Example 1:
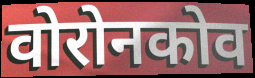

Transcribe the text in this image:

वोरोनकोव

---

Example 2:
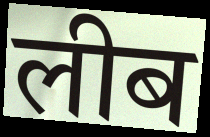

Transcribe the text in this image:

लीब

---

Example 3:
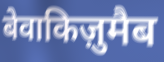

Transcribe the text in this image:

बेवाकिज़ुमैब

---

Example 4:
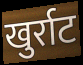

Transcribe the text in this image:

खुर्राट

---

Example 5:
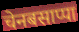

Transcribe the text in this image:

चेनबसाप्पा